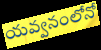
యవ్వనంలోనో